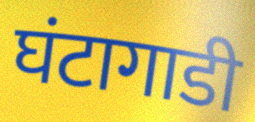
घंटागाडी